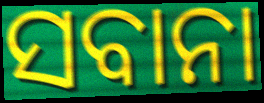
ସବାନା